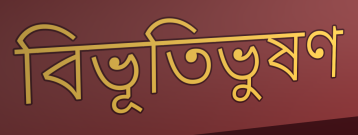
বিভূতিভুষণ